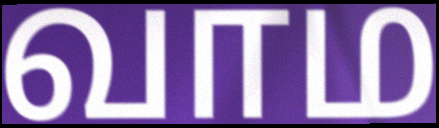
வாம